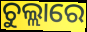
ଚୁଲ୍ଲାରେ